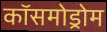
कॉसमोड्रोम